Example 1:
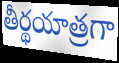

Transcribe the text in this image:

తీర్థయాత్రగా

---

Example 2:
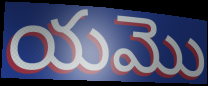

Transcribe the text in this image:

యమొ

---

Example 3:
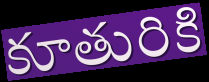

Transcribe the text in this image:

కూతురికి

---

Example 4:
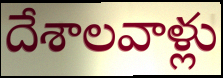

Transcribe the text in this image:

దేశాలవాళ్లు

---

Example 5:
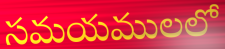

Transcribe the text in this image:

సమయములలో